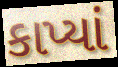
કાપ્યાં